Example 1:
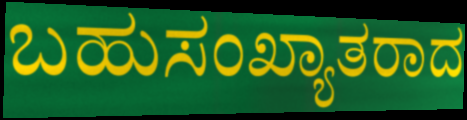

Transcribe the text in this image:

ಬಹುಸಂಖ್ಯಾತರಾದ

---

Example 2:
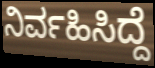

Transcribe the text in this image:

ನಿರ್ವಹಿಸಿದ್ದೆ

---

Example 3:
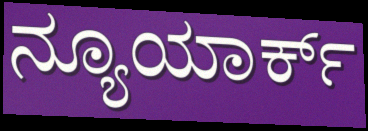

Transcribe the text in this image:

ನ್ಯೂಯಾರ್ಕ್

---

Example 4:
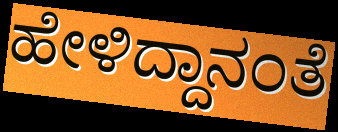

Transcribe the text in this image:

ಹೇಳಿದ್ದಾನಂತೆ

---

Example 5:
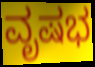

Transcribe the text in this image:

ವೃಷಭ